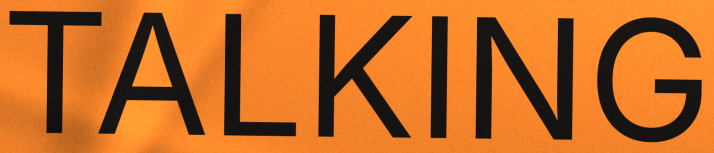
TALKING